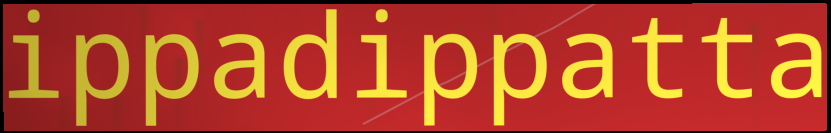
ippadippatta